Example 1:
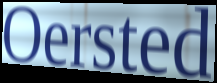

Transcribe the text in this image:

Oersted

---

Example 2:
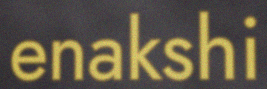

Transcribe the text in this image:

enakshi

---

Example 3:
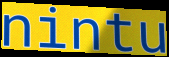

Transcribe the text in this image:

nintu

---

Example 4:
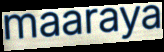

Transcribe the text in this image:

maaraya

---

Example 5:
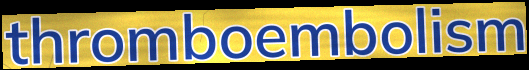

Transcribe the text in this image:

thromboembolism